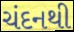
ચંદનથી